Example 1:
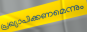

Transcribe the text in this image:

പ്രഖ്യാപിക്കണമെന്നും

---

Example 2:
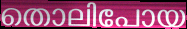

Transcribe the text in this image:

തൊലിപോയ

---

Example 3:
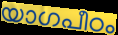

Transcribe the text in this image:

യാഗപീഠം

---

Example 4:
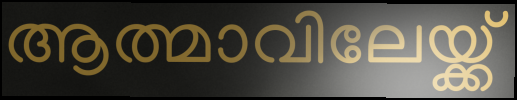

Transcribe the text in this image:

ആത്മാവിലേയ്ക്ക്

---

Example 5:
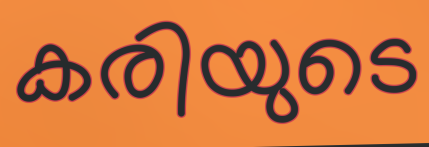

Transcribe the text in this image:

കരിയുടെ